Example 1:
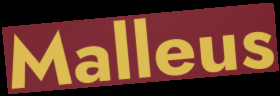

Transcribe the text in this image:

Malleus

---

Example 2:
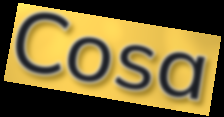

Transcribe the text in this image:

Cosa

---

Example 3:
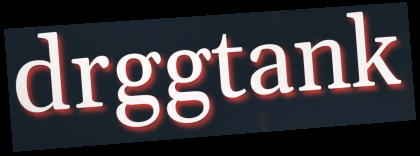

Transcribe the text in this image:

drggtank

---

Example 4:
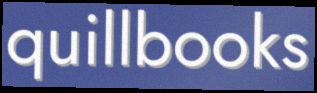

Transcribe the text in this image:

quillbooks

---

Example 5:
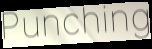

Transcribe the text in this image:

Punching